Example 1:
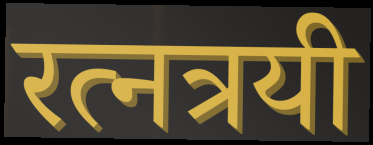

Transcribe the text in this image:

रत्नत्रयी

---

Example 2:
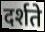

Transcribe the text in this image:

दर्शते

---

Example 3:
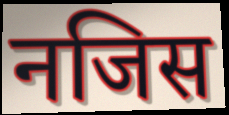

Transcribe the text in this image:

नजिस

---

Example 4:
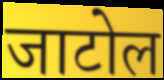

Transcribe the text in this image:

जाटोल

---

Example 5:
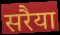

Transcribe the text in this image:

सरैया